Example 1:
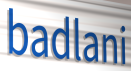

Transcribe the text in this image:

badlani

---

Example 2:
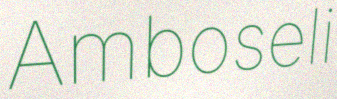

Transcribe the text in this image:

Amboseli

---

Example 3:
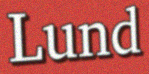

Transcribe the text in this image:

Lund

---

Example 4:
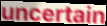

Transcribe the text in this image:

uncertain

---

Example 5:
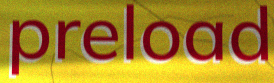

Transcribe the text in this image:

preload